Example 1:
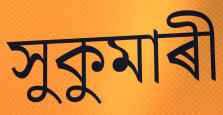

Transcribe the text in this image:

সুকুমাৰী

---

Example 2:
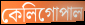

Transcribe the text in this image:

কেলিগোপাল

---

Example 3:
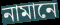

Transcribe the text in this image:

নামানে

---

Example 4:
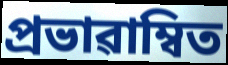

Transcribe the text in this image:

প্ৰভাৱাম্বিত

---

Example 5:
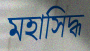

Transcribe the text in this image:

মহাসিদ্ধ